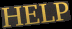
HELP